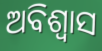
ଅବିଶ୍ବାସ